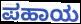
ಪಹಾಯ